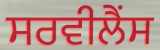
ਸਰਵੀਲੈਂਸ